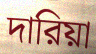
দারিয়া